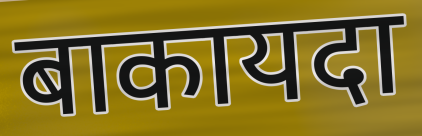
बाकायदा